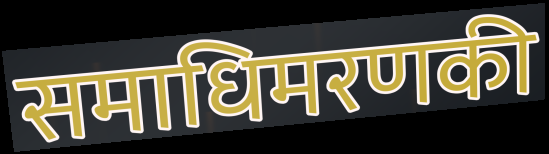
समाधिमरणकी